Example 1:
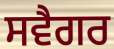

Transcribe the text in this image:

ਸਵੈਗਰ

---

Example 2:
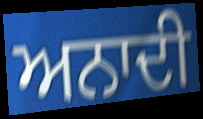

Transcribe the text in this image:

ਅਨਾਦੀ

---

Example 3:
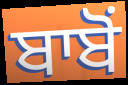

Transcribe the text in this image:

ਬਾਬੋਂ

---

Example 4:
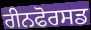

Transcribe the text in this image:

ਰੀਨਫੋਰਸਡ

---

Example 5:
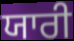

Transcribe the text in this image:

ਯਾਰੀ